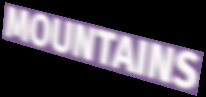
MOUNTAINS